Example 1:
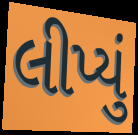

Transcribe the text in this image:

લીપ્યું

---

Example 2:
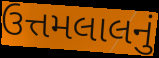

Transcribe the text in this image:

ઉત્તમલાલનું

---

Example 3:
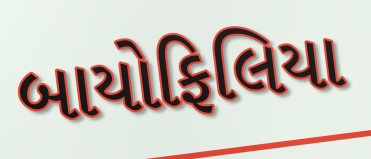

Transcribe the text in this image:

બાયોફિલિયા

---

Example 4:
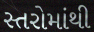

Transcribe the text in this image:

સ્તરોમાંથી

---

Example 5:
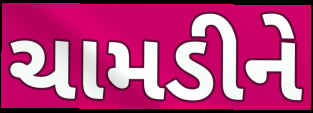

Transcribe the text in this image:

ચામડીને